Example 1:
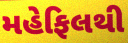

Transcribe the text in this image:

મહેફિલથી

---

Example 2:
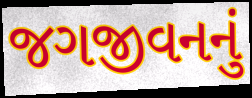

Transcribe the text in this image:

જગજીવનનું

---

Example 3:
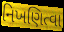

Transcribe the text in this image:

નિખણિત્વા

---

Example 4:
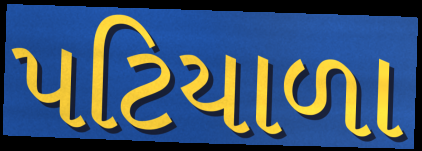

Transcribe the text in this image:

પટિયાળા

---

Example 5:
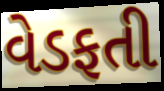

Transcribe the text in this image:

વેડફતી